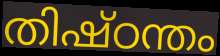
തിഷ്ഠന്തം